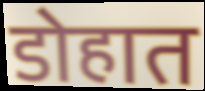
डोहात